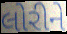
લોરીને